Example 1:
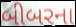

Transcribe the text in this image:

બીબરના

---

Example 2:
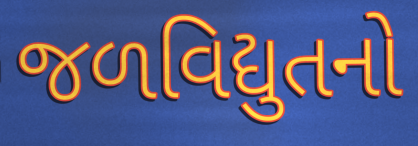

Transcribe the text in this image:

જળવિદ્યુતનો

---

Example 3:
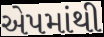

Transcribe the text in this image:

એપમાંથી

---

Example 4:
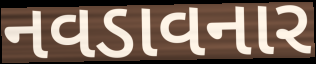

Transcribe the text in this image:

નવડાવનાર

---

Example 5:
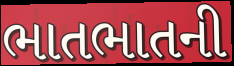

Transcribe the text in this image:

ભાતભાતની